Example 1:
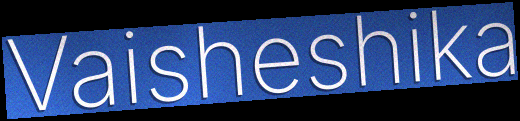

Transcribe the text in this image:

Vaisheshika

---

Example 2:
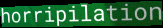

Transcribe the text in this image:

horripilation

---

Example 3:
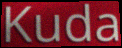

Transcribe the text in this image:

Kuda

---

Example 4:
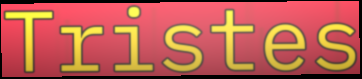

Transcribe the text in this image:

Tristes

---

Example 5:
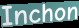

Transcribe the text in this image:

Inchon